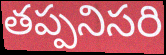
తప్పనిసరి